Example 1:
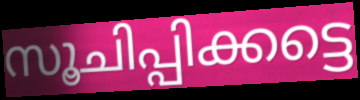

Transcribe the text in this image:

സൂചിപ്പിക്കട്ടെ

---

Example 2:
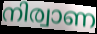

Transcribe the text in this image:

നിര്വാണ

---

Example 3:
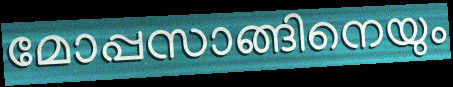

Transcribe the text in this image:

മോപ്പസാങ്ങിനെയും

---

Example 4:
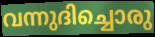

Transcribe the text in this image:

വന്നുദിച്ചൊരു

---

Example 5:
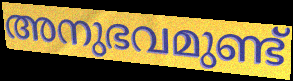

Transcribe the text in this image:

അനുഭവമുണ്ട്